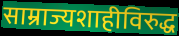
साम्राज्यशाहीविरुद्ध